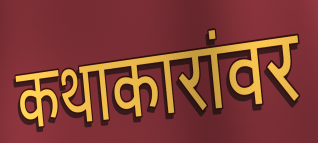
कथाकारांवर